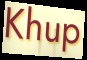
Khup